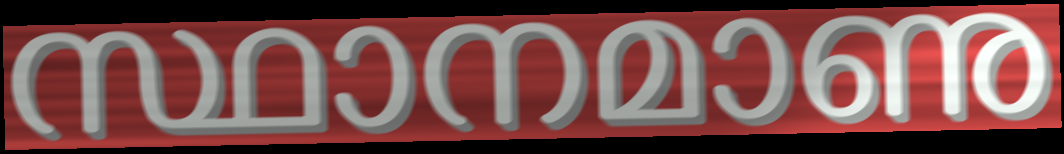
സ്ഥാനമാണു